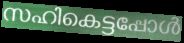
സഹികെട്ടപ്പോൾ